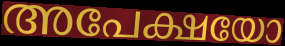
അപേക്ഷയോ